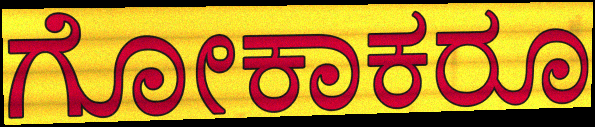
ಗೋಕಾಕರೂ